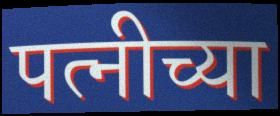
पत्नीच्या